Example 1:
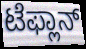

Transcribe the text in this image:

ಟೆಫ್ಲಾನ್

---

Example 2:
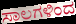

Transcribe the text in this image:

ಸಾಲಗಳಿಂದ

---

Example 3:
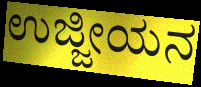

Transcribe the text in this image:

ಉಜ್ಜೀಯನ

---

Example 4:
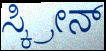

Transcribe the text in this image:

ಸ್ಕ್ರೀನ್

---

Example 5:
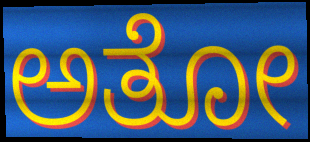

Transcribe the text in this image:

ಅತೋ